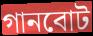
গানবোট